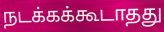
நடக்கக்கூடாதது